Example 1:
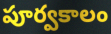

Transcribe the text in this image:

పూర్వకాలం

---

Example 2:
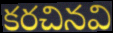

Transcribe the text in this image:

కరచినవి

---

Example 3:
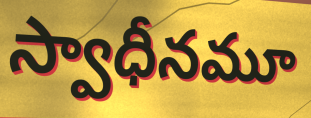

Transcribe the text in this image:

స్వాధీనమూ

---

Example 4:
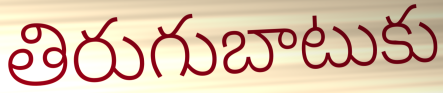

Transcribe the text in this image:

తిరుగుబాటుకు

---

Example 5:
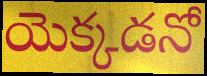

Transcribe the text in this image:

యెక్కడనో